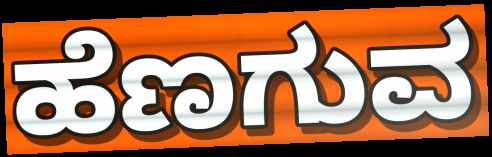
ಹೆಣಗುವ